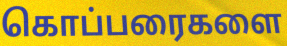
கொப்பரைகளை